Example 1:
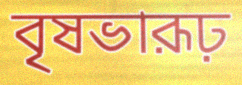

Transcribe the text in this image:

বৃষভারূঢ়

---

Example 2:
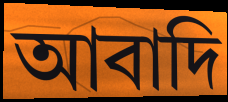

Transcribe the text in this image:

আবাদি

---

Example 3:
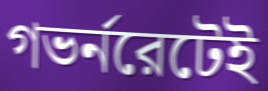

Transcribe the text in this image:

গভর্নরেটেই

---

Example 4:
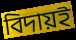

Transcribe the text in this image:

বিদায়ই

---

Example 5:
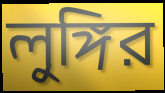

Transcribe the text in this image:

লুঙ্গির